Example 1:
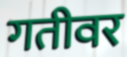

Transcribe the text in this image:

गतीवर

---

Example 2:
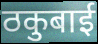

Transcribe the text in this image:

ठकुबाई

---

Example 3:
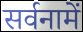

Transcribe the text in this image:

सर्वनामें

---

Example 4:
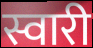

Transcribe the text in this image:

स्वारी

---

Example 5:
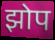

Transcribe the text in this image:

झोप